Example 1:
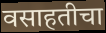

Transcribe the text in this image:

वसाहतीचा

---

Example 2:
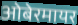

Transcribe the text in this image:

ओबेरमायर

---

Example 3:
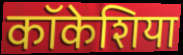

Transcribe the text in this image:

कॉकेशिया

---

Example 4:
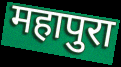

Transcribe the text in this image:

महापुरा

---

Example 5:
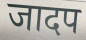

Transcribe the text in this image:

जादप